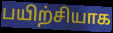
பயிற்சியாக